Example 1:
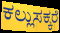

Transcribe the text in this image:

ಕಲ್ಲುಸಕ್ಕರೆ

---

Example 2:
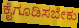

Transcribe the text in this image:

ಕೈಗೂಡಿಸಬೇಕು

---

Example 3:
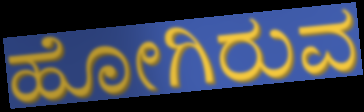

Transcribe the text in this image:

ಹೋಗಿರುವ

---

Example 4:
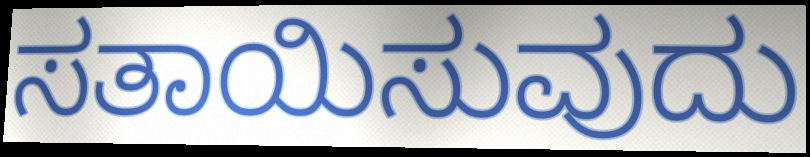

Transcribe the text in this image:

ಸತಾಯಿಸುವುದು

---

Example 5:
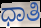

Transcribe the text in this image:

ಧಾತಿ